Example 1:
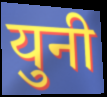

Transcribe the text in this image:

युनी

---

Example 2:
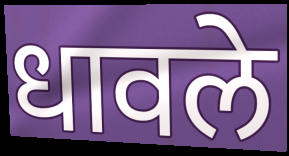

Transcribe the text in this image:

धावले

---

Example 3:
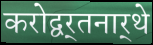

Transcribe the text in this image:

करोद्वर्तनार्थे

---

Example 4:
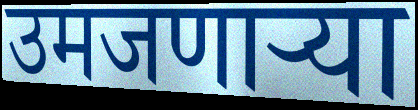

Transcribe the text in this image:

उमजणाऱ्या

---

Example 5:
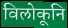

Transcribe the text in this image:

विलोकूनि